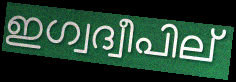
ഇഗ്വദ്വീപില്